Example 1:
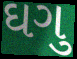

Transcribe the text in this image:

ઘગુ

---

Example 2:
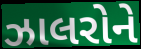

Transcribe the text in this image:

ઝાલરોને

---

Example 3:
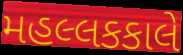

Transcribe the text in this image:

મહલ્લકકાલે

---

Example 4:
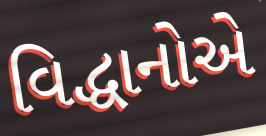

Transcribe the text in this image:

વિદ્ધાનોએ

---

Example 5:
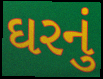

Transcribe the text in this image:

ઘરનું